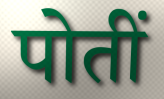
पोतीं